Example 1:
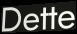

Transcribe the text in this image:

Dette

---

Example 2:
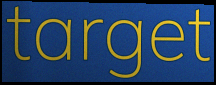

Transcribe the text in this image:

target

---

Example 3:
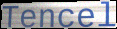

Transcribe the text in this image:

Tencel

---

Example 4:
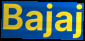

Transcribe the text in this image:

Bajaj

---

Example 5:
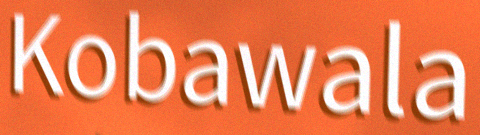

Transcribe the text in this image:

Kobawala